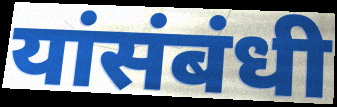
यांसंबंधी